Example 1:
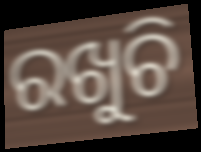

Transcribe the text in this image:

ରଖୁଚି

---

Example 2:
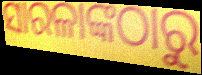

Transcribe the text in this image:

ସାରଳାଙ୍କଠାରୁ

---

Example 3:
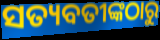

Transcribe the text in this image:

ସତ୍ୟବତୀଙ୍କଠାରୁ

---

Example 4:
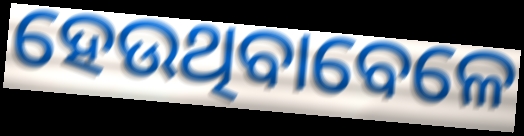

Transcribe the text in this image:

ହେଉଥିବାବେଳେ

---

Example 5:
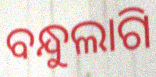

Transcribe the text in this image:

ବନ୍ଧୁଲାଗି